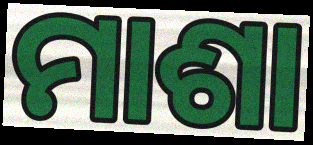
ମାଶା